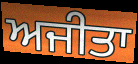
ਅਜੀਤਾ